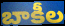
బాకీల